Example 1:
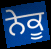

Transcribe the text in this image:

ਨੇਕੂ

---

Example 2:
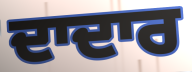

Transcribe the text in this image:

ਦਾਦਾਰ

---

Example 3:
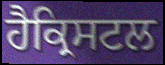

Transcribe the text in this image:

ਹੈਕ੍ਰਿਸਟਲ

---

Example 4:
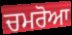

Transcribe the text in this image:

ਚਮਰੋਆ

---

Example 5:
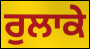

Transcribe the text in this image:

ਰੁਲਾਕੇ